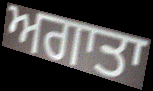
ਅਗਾਤਾ